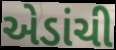
એડાંચી